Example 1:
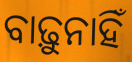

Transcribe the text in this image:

ବାଢ଼ୁନାହିଁ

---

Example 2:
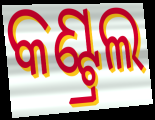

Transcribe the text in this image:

କଣ୍ଟ୍ରଲ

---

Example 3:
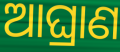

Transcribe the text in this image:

ଆଘ୍ରାଣ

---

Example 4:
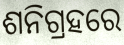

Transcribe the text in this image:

ଶନିଗ୍ରହରେ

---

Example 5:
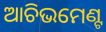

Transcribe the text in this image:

ଆଚିଭମେଣ୍ଟ